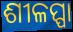
ଶୀଳପ୍ପା